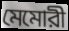
মেমোরী